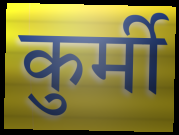
कुर्मी